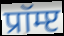
प्रॉम्प्ट